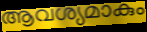
ആവശ്യമാകും